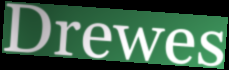
Drewes